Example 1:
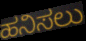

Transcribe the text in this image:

ಹನಿಸಲು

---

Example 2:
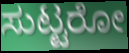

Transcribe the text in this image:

ಸುಟ್ಟರೋ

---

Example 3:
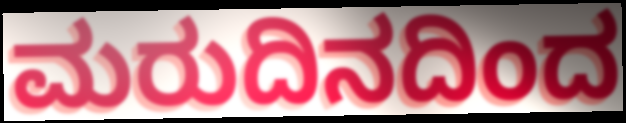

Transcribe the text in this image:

ಮರುದಿನದಿಂದ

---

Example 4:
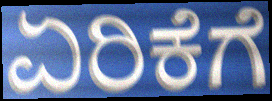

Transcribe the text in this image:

ಏರಿಕೆಗೆ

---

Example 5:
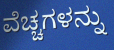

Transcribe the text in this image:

ವೆಚ್ಚಗಳನ್ನು